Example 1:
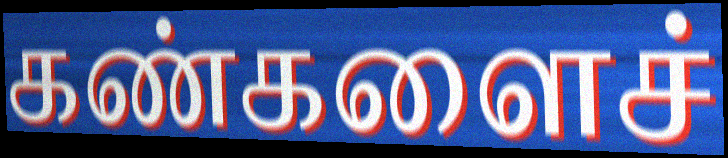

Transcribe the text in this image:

கண்களைச்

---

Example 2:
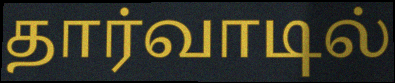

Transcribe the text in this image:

தார்வாடில்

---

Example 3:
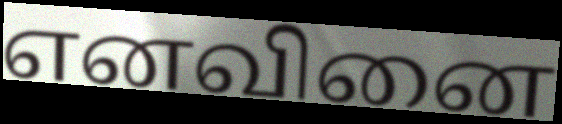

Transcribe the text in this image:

எனவினை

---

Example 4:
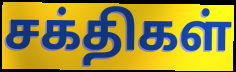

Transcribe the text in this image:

சக்திகள்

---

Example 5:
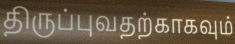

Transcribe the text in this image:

திருப்புவதற்காகவும்